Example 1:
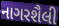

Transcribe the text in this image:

નાગરશૈલી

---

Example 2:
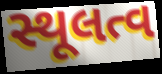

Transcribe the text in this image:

સ્થૂલત્વ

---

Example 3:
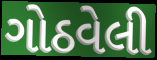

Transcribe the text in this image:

ગોઠવેલી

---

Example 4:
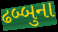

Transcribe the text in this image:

ઢબ્બુના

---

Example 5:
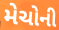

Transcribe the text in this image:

મેચોની